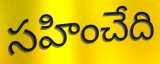
సహించేది